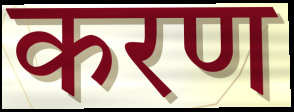
करण